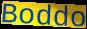
Boddo